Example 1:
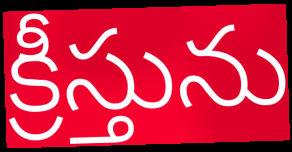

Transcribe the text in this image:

క్రీస్తును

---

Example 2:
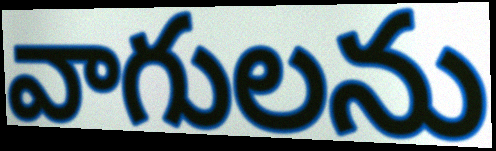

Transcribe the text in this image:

వాగులను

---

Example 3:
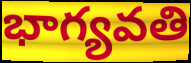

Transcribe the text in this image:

భాగ్యవతి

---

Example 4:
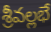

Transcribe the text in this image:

శ్రీవల్లభే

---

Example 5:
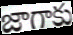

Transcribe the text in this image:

జాగాకు